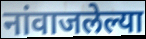
नांवाजलेल्या